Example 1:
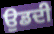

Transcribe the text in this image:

ਉਡਦੀ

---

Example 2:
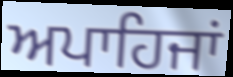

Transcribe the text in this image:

ਅਪਾਹਿਜਾਂ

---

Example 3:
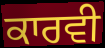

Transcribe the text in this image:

ਕਾਰਵੀ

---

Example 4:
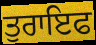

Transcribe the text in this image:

ਤੁਰਾਇਫ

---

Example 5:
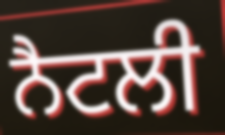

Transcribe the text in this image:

ਨੈਟਲੀ